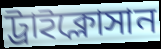
ট্রাইক্লোসান